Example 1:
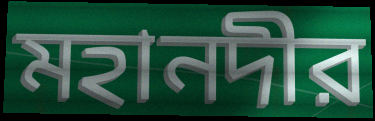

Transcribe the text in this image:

মহানদীর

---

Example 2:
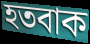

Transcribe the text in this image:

হতবাক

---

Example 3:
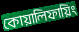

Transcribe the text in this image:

কোয়ালিফায়িং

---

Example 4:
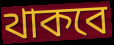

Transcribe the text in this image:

থাকবে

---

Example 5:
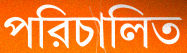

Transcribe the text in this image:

পরিচালিত